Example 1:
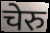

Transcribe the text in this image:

चेरु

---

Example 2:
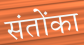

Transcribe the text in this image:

संतोंका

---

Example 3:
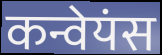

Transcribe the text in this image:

कन्वेयंस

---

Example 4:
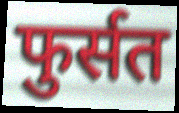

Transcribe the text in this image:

फुर्सत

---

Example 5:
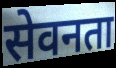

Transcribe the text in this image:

सेवनता